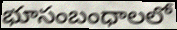
భూసంబంధాలలో